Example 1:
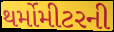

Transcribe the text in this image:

થર્મોમીટરની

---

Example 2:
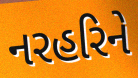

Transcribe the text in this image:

નરહરિને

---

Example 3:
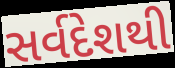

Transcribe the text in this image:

સર્વદેશથી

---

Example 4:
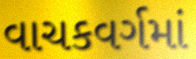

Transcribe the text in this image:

વાચકવર્ગમાં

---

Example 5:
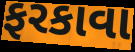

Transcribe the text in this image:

ફરકાવા